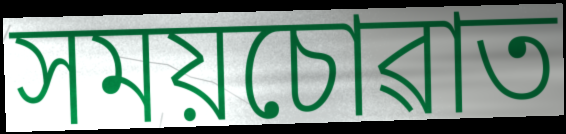
সময়চোৱাত